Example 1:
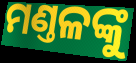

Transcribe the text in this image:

ମଣ୍ତଳଙ୍କୁ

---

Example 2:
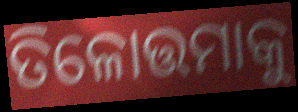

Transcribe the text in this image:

ତିଳୋତ୍ତମାକୁ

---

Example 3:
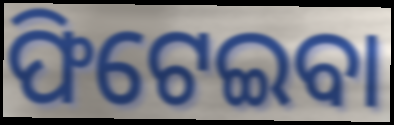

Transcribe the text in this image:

ଫିଟେଇବା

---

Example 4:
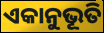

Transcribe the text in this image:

ଏକାନୁଭୂତି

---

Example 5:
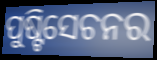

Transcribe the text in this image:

ପୁଷ୍ଟିସେଚନର